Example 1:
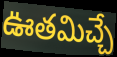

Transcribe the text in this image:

ఊతమిచ్చే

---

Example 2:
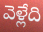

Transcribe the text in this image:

వెళ్లేది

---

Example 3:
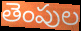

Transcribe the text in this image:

తెంపుల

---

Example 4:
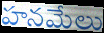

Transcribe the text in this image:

హనమేలు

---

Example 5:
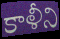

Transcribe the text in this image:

కాళీని